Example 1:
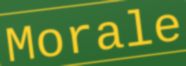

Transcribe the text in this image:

Morale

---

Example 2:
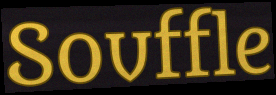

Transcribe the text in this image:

Souffle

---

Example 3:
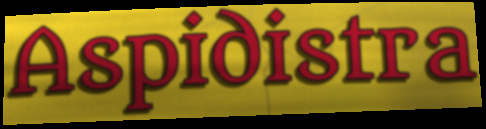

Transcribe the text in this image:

Aspidistra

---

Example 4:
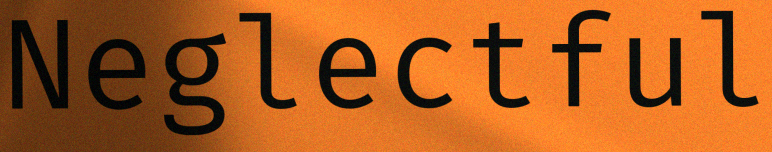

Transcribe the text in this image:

Neglectful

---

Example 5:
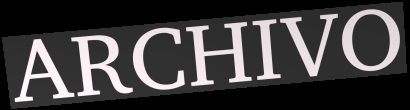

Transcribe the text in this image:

ARCHIVO